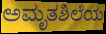
ಅಮೃತಶಿಲೆಯ